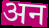
अन